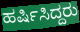
ಹರ್ಷಿಸಿದ್ದರು